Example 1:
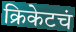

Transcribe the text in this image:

क्रिकेटचं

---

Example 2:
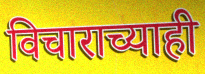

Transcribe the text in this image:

विचाराच्याही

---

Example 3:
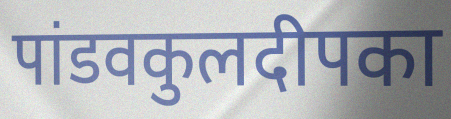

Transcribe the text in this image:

पांडवकुलदीपका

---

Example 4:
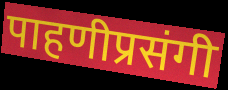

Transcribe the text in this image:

पाहणीप्रसंगी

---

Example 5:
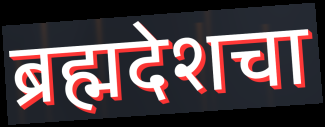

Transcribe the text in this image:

ब्रह्मदेशचा